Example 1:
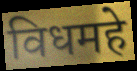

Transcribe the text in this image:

विधमहे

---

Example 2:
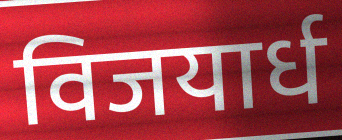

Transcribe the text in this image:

विजयार्ध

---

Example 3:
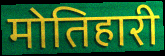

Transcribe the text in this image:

मोतिहारी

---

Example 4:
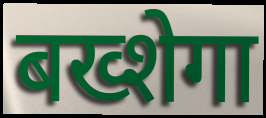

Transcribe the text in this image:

बख्शेगा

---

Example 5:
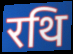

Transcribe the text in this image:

रथि